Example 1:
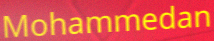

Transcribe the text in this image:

Mohammedan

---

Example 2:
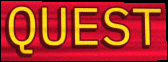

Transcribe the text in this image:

QUEST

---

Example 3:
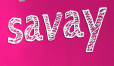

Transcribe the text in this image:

savay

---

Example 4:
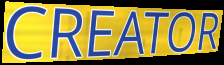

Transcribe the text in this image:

CREATOR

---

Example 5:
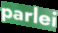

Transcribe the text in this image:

parlei